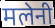
मलेनी